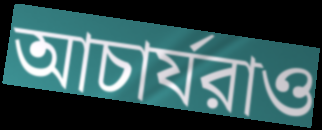
আচার্যরাও